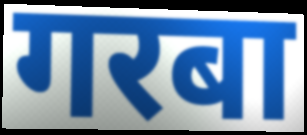
गरबा